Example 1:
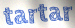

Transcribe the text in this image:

tartar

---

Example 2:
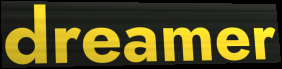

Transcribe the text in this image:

dreamer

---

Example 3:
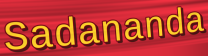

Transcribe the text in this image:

Sadananda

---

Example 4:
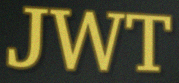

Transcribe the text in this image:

JWT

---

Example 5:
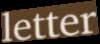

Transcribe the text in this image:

letter